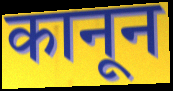
कानून